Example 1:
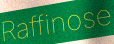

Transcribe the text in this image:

Raffinose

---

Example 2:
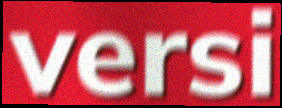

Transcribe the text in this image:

versi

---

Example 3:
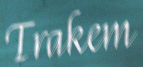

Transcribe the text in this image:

Trakem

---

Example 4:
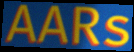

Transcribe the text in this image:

AARs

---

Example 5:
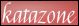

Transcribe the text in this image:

katazone